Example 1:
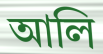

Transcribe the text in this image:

আলি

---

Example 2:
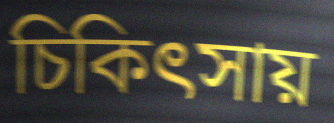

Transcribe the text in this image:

চিকিৎসায়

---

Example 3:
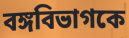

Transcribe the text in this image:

বঙ্গবিভাগকে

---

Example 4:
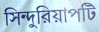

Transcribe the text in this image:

সিন্দুরিয়াপটি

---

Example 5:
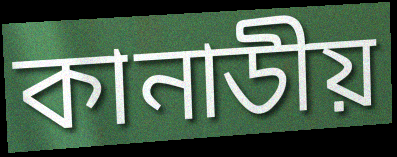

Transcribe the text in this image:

কানাডীয়